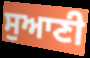
ਸੁਆਣੀ